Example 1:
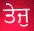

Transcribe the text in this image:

ਤੇਜੁ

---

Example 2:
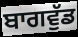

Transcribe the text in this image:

ਬਾਗਵੁੱਡ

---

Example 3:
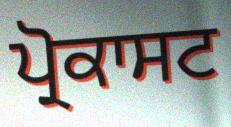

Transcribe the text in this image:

ਪ੍ਰੋਕਾਸਟ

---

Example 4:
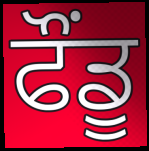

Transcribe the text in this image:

ਫੌਂਡੂ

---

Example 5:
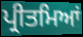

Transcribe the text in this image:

ਪ੍ਰੀਤਮਿਆਂ